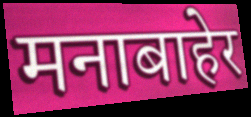
मनाबाहेर